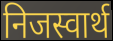
निजस्वार्थ